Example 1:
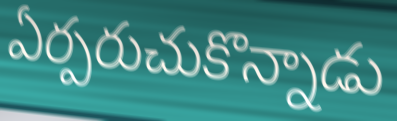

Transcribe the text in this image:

ఏర్పరుచుకొన్నాడు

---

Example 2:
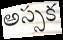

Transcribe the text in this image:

అస్సక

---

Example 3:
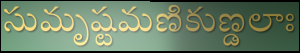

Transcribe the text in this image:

సుమృష్టమణికుణ్డలాః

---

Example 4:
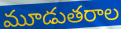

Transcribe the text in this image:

మూడుతరాల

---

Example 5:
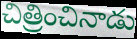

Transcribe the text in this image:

చిత్రించినాడు